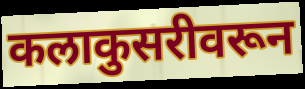
कलाकुसरीवरून